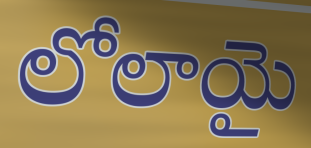
లోలాయై